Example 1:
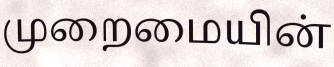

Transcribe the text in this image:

முறைமையின்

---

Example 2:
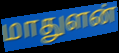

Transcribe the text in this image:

மாதுளன்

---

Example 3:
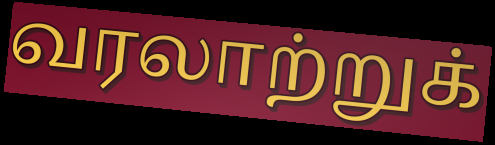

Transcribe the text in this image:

வரலாற்றுக்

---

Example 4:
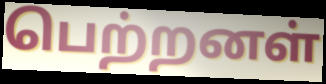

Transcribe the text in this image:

பெற்றனள்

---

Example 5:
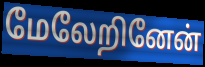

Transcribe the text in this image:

மேலேறினேன்